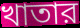
খাতার